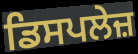
ਡਿਸਪਲੇਜ਼